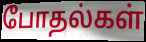
போதல்கள்